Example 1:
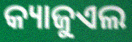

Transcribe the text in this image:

କ୍ୟାଜୁଏଲ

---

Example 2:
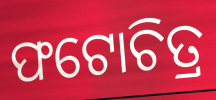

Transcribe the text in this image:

ଫଟୋଚିତ୍ର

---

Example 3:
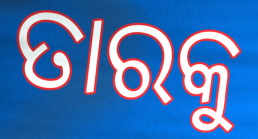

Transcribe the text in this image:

ତାରକୁ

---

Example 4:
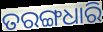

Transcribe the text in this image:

ତରଙ୍ଗଧାରି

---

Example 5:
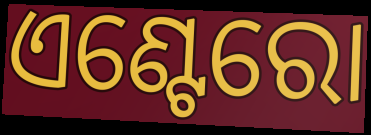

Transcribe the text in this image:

ଏଣ୍ଟେରୋ